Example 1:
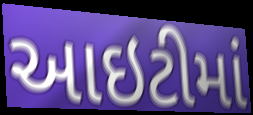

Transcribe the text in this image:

આઇટીમાં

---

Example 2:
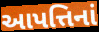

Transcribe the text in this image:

આપત્તિનાં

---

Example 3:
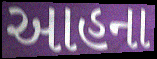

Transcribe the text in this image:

આહના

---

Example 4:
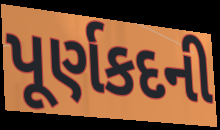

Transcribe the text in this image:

પૂર્ણકદની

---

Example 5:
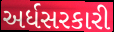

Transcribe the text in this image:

અર્ધસરકારી